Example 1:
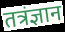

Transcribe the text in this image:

तत्रंज्ञान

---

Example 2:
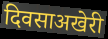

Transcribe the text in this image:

दिवसाअखेरी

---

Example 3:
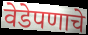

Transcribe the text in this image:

वेडेपणाचे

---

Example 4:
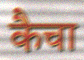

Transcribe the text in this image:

कैचा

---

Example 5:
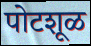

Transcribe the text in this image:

पोटशूळ